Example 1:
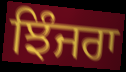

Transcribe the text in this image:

ਝਿੰਜਰਾ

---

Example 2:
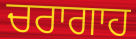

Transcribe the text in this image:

ਚਰਾਗਾਹ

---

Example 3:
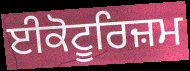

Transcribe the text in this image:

ਈਕੋਟੂਰਿਜ਼ਮ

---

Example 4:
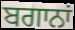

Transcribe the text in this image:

ਬਗਾਨਾਂ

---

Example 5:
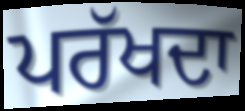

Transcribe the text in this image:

ਪਰੱਖਦਾ